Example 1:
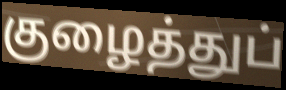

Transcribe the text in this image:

குழைத்துப்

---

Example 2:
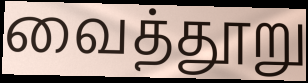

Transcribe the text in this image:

வைத்தூறு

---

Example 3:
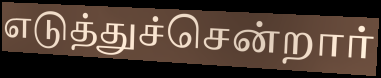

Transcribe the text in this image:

எடுத்துச்சென்றார்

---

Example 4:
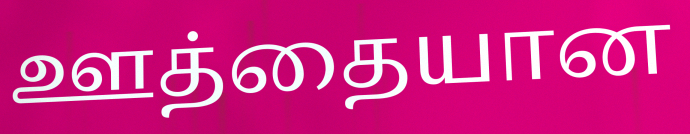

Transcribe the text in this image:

ஊத்தையான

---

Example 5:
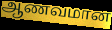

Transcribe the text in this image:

ஆணவமான